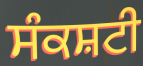
ਸੰਕਸ਼ਟੀ